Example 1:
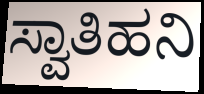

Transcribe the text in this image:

ಸ್ವಾತಿಹನಿ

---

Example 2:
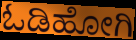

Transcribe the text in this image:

ಓಡಿಹೋಗಿ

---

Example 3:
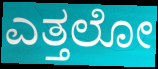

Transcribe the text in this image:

ಎತ್ತಲೋ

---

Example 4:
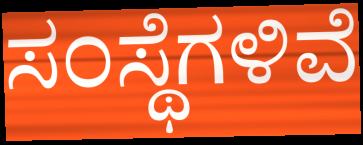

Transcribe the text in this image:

ಸಂಸ್ಥೆಗಳಿವೆ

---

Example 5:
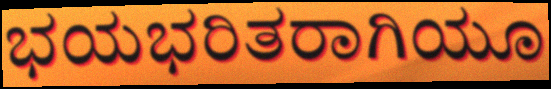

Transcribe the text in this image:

ಭಯಭರಿತರಾಗಿಯೂ